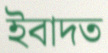
ইবাদত